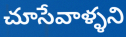
చూసేవాళ్ళని